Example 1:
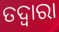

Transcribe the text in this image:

ତଦ୍ବାରା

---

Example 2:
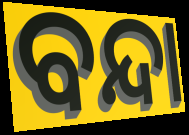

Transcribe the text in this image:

ବନ୍ଦା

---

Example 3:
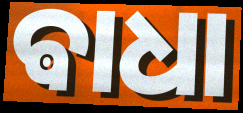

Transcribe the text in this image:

ଵାଧା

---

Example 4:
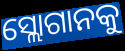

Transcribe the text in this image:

ସ୍ଲୋଗାନକୁ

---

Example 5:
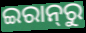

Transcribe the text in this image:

ଇରାନ୍‌ରୁ